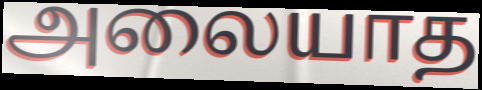
அலையாத